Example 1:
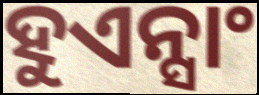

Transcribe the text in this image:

ହୁଏନ୍ସାଂ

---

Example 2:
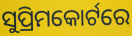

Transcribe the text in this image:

ସୁପ୍ରିମକୋର୍ଟରେ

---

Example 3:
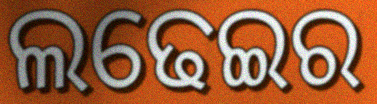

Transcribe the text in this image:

ଲଢେଇର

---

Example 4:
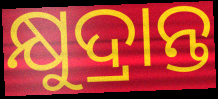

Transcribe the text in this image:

କ୍ଷୁଦ୍ରାନ୍ତ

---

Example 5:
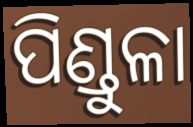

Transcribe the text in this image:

ପିଣ୍ଡୁଳା